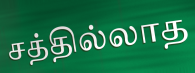
சத்தில்லாத